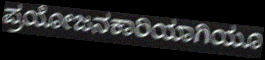
ಪ್ರಯೋಜನಕಾರಿಯಾಗಿಯೂ